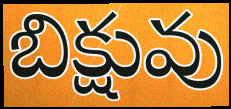
బిక్షువు